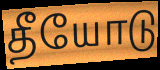
தீயோடு